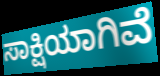
ಸಾಕ್ಷಿಯಾಗಿವೆ